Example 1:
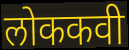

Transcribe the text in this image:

लोककवी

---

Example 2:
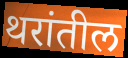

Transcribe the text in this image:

थरांतील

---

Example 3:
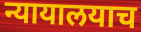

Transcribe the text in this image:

न्यायालयाच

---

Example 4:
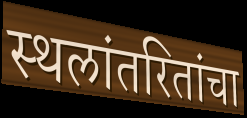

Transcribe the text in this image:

स्थलांतरितांचा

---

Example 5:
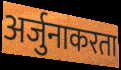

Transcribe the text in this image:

अर्जुनाकरता